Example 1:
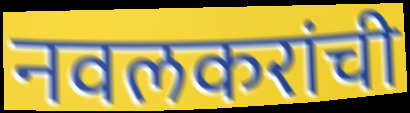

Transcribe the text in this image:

नवलकरांची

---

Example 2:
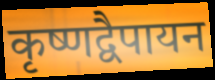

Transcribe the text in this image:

कृष्णद्वैपायन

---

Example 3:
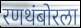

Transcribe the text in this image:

रणथंबोरला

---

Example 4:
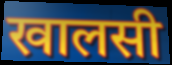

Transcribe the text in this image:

खालसी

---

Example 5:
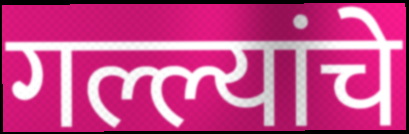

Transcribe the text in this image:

गल्ल्यांचे